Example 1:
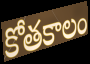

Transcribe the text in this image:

కోతకాలం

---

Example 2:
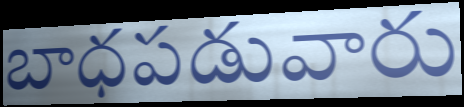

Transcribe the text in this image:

బాధపడువారు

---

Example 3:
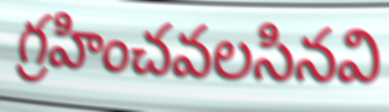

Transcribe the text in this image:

గ్రహించవలసినవి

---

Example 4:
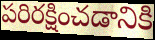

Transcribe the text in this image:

పరిరక్షించడానికి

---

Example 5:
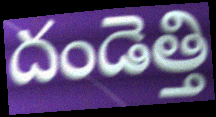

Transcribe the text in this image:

దండెత్తి